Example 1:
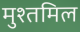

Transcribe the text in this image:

मुश्तमिल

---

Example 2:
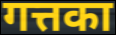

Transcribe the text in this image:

गत्तका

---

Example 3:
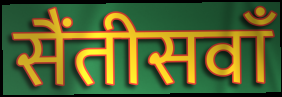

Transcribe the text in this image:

सैंतीसवाँ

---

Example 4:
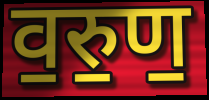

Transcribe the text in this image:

व॒रु॒ण॒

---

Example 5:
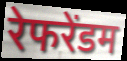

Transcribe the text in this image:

रेफरेंडम